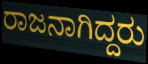
ರಾಜನಾಗಿದ್ದರು